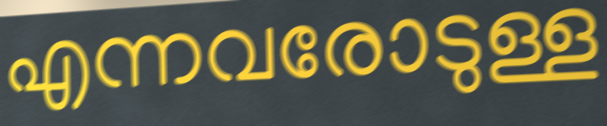
എന്നവരോടുള്ള